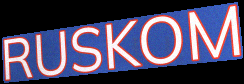
RUSKOM